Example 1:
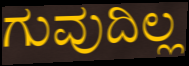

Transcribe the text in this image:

ಗುವುದಿಲ್ಲ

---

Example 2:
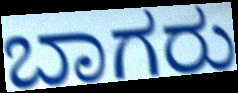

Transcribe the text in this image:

ಬಾಗರು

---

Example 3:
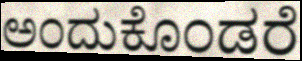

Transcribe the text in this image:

ಅಂದುಕೊಂಡರೆ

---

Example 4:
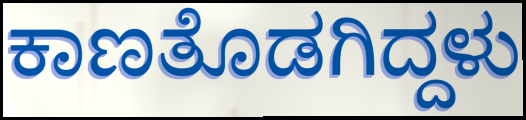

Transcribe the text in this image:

ಕಾಣತೊಡಗಿದ್ದಳು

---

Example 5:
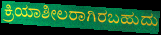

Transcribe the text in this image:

ಕ್ರಿಯಾಶೀಲರಾಗಿರಬಹುದು